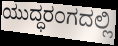
ಯುದ್ಧರಂಗದಲ್ಲಿ